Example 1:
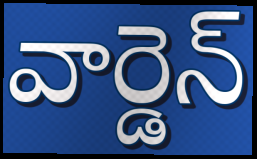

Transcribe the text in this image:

వార్డెన్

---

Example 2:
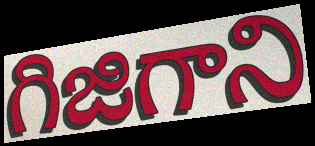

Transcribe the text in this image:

గిజిగాని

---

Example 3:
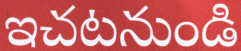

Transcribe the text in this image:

ఇచటనుండి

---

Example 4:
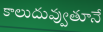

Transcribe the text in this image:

కాలుదువ్వుతూనే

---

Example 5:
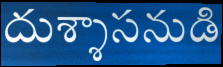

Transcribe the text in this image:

దుశ్శాసనుడి